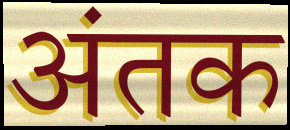
अंतक